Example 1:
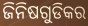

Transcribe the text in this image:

ଜିନିଷଗୁଡିକର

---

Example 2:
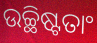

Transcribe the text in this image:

ଉଚ୍ଛିଷ୍ଟତାଂ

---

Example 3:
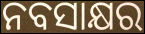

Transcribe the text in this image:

ନବସାକ୍ଷର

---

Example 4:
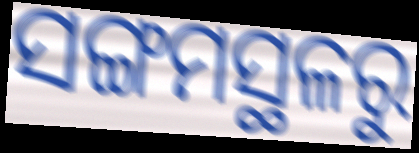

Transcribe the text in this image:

ସଙ୍ଗମସ୍ଥଳରୁ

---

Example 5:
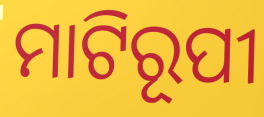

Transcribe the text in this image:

ମାଟିରୂପୀ